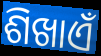
ଶିଖାଏଁ